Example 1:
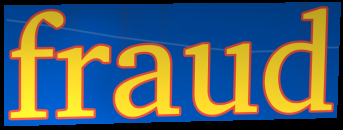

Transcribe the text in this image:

fraud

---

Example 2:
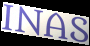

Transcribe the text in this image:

INAS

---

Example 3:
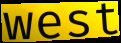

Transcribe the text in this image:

west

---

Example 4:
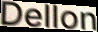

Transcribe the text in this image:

Dellon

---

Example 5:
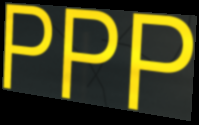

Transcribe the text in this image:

PPP